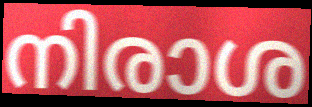
നിരാശ